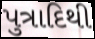
પુત્રાદિથી